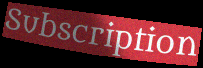
Subscription